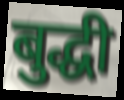
बुद्धी